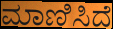
ಮಾಣಿಸಿದೆ